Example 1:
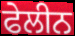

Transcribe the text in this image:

ਫੇਲੀਨ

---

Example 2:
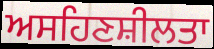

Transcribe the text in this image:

ਅਸਹਿਣਸ਼ੀਲਤਾ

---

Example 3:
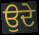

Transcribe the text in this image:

ਉਦੇ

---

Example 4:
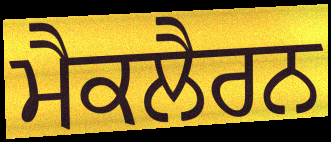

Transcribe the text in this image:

ਮੈਕਲੈਰਨ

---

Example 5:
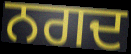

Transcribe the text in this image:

ਨਗਦ